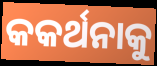
କକର୍ଥନାକୁ